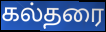
கல்தரை